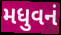
મધુવનં